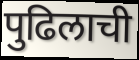
पुढिलाची